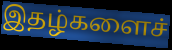
இதழ்களைச்